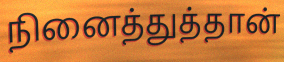
நினைத்துத்தான்